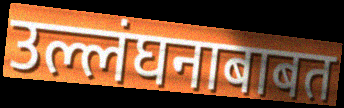
उल्लंघनाबाबत